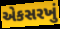
એકસરખું